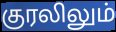
குரலிலும்